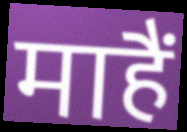
माहैं